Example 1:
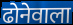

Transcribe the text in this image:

ढोनेवाला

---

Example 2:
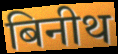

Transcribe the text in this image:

बिनीथ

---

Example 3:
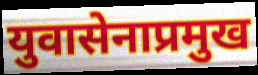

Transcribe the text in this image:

युवासेनाप्रमुख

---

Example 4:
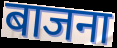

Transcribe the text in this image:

बाजना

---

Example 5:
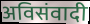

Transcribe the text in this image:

अविसंवादी